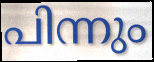
പിന്നും